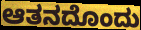
ಆತನದೊಂದು